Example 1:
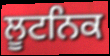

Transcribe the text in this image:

ਲੂਟਨਿਕ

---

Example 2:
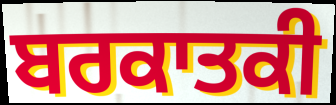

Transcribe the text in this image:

ਬਰਕਾਤਕੀ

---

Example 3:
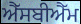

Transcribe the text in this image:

ਐੱਸਬੀਐੱਮ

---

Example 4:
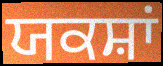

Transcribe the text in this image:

ਯਕਸ਼ਾਂ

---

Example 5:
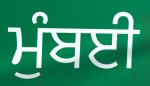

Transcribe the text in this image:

ਮੁੰਬਈ